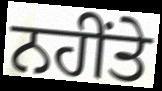
ਨਹੀਂਤੇ